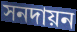
সনদায়ন